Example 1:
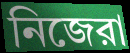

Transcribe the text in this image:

নিজেরা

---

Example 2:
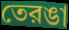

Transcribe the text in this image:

তেরঙা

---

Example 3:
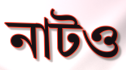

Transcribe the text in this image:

নাটও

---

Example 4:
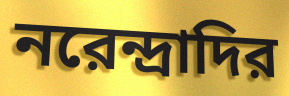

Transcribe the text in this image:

নরেন্দ্রাদির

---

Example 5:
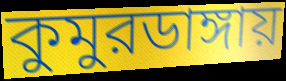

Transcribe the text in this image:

কুমুরডাঙ্গায়